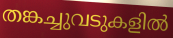
തങ്കച്ചുവടുകളിൽ